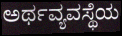
ಅರ್ಥವ್ಯವಸ್ಥೆಯ